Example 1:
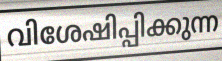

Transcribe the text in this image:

വിശേഷിപ്പിക്കുന്ന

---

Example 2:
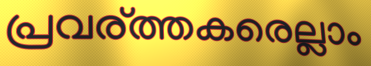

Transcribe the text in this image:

പ്രവര്ത്തകരെല്ലാം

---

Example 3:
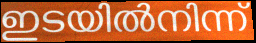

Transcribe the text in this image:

ഇടയിൽനിന്ന്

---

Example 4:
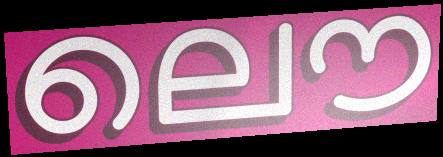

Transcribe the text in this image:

ലൌ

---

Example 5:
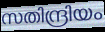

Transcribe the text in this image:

സതിന്ദ്രിയം